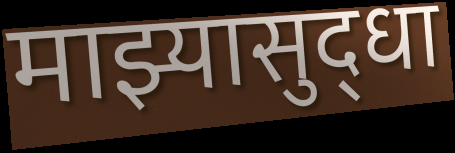
माझ्यासुद्धा